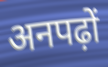
अनपढ़ों